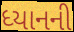
ધ્યાનની